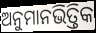
ଅନୁମାନଭିତ୍ତିକ